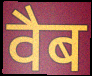
वैब